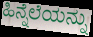
ಹಿನ್ನೆಲೆಯನ್ನು